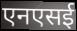
एनएसई